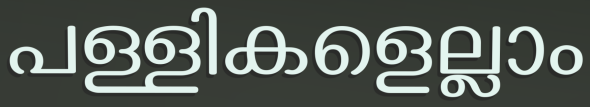
പള്ളികളെല്ലാം